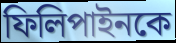
ফিলিপাইনকে